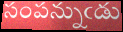
సంపన్నుఁడు